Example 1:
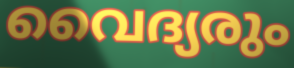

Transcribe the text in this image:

വൈദ്യരും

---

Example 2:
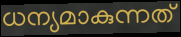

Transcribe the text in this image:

ധന്യമാകുന്നത്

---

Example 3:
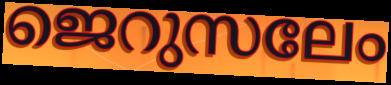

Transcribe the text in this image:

ജെറുസലേം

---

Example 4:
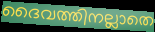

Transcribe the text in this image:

ദൈവത്തിനല്ലാതെ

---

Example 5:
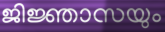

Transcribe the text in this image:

ജിജ്ഞാസയും